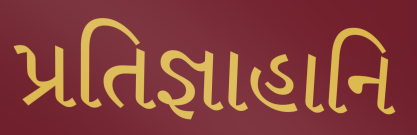
પ્રતિજ્ઞાહાનિ